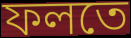
ফলতে